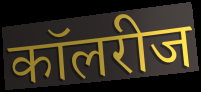
कॉलरीज